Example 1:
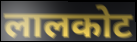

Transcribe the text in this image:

लालकोट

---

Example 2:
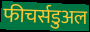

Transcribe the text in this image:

फीचर्सडुअल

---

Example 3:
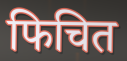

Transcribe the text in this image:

फिचित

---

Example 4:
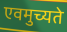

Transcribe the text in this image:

एवमुच्यते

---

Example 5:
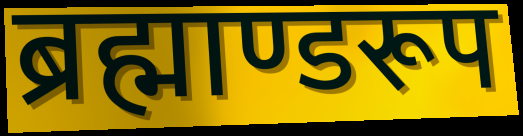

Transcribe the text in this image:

ब्रह्माण्डरूप